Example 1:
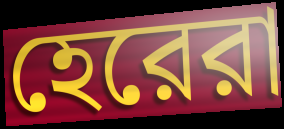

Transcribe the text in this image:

হেরেরা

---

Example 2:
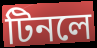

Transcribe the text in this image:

টিনলে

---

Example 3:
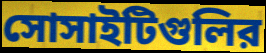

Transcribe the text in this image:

সোসাইটিগুলির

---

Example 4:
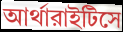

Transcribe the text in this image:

আর্থারাইটিসে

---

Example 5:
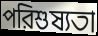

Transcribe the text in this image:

পরিশুষ্যতা